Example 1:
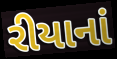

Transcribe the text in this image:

રીયાનાં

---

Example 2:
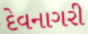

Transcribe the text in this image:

દેવનાગરી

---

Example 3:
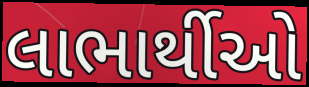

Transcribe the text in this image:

લાભાર્થીઓ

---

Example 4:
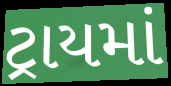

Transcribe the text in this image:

ટ્રાયમાં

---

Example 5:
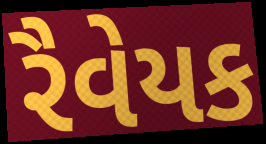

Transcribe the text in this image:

રૈવેયક